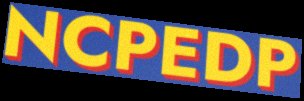
NCPEDP